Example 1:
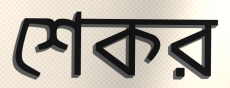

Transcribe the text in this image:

শেকর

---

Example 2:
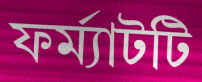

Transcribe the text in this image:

ফর্ম্যাটটি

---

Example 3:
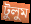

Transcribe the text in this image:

টুলুম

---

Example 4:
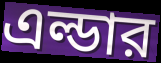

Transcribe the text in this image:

এল্ডার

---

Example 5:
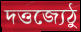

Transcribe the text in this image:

দত্তজ্যেঠু